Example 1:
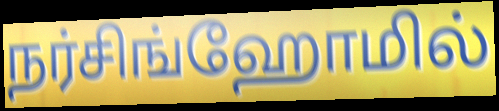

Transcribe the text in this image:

நர்சிங்ஹோமில்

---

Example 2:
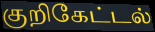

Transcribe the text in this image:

குறிகேட்டல்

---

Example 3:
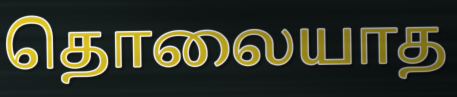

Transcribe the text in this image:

தொலையாத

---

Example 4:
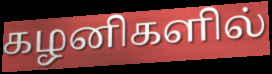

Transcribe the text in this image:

கழனிகளில்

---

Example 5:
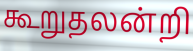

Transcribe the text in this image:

கூறுதலன்றி